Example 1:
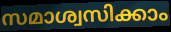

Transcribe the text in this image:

സമാശ്വസിക്കാം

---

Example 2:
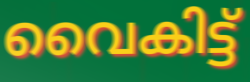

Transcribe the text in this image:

വൈകിട്ട്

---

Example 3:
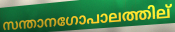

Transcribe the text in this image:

സന്താനഗോപാലത്തില്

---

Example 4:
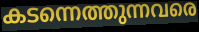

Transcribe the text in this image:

കടന്നെത്തുന്നവരെ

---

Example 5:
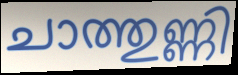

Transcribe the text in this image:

ചാത്തുണ്ണി